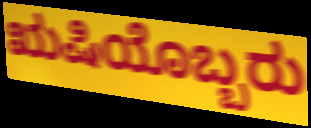
ಋಷಿಯೊಬ್ಬರು